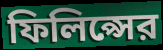
ফিলিপ্সের